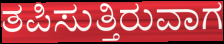
ತಪಿಸುತ್ತಿರುವಾಗ